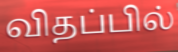
விதப்பில்